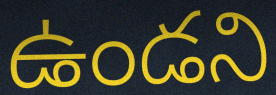
ఉండని